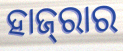
ହାଜ୍‌ରାର